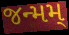
જન્મમ્